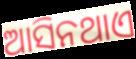
ଆସିନଥାଏ